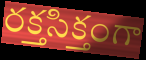
రక్తసిక్తంగా